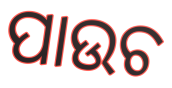
ପାଉଚ